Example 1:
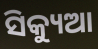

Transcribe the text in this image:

ସିକ୍ୟୁଆ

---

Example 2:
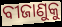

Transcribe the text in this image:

ବୀଜାଣୁକୁ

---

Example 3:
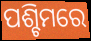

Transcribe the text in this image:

ପଶ୍ଚିମରେ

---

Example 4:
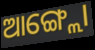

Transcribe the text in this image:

ଆଙ୍ଗ୍ଲୋ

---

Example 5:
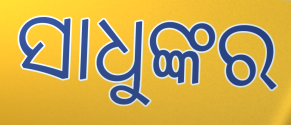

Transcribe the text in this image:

ସାଧୁଙ୍କର